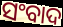
ସଂବାଦ